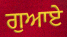
ਗੁਆਏ